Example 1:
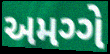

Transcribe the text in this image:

અમગ્ગે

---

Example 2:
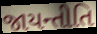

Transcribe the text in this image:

જાયન્તીતિ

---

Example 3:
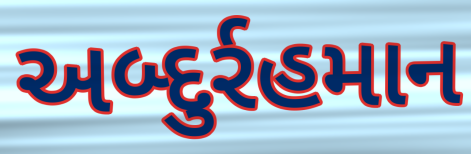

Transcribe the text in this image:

અબ્દુર્રહમાન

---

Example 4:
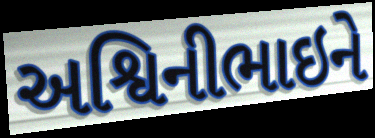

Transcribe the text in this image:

અશ્વિનીભાઇને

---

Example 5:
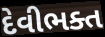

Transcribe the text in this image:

દેવીભક્ત